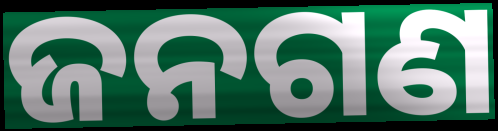
ଜନଗଣ